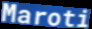
Maroti